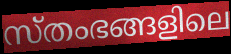
സ്തംഭങ്ങളിലെ